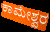
ಕಾಮೇಶ್ವರ